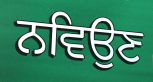
ਨਵਿਉਣ